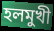
হলমুখী